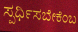
ಸ್ಪರ್ಧಿಸಬೇಕೆಂಬ